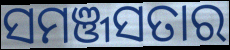
ସମଞ୍ଜସତାର